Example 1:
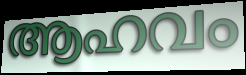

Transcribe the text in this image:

ആഹവം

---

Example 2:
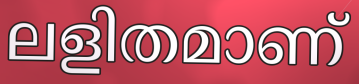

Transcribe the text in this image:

ലളിതമാണ്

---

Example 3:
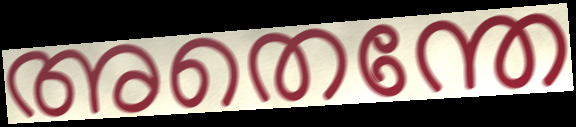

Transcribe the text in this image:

അതെന്തേ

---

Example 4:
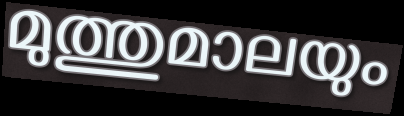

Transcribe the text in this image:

മുത്തുമാലയും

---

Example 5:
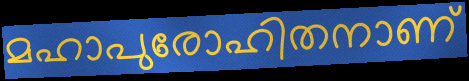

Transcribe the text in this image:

മഹാപുരോഹിതനാണ്